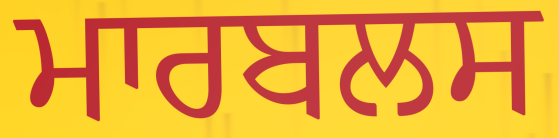
ਮਾਰਬਲਸ